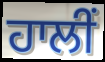
ਹਾਲੀਂ